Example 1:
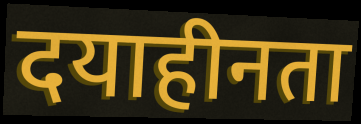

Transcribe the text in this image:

दयाहीनता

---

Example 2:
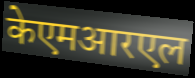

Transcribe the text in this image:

केएमआरएल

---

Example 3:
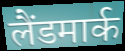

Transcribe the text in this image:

लैंडमार्क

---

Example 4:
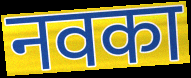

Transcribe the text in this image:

नवका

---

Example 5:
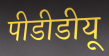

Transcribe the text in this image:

पीडीडीयू